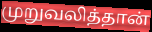
முறுவலித்தான்